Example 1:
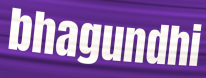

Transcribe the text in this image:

bhagundhi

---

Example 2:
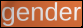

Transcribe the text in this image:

gender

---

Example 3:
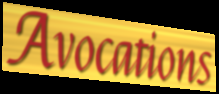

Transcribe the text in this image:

Avocations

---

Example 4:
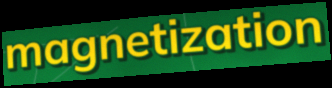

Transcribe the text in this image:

magnetization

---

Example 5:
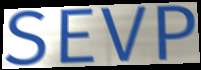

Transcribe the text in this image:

SEVP